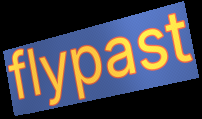
flypast